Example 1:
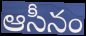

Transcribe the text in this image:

ఆసీనం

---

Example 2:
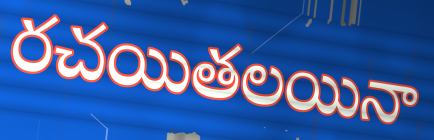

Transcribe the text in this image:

రచయితలయినా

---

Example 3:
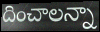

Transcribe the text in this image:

దించాలన్నా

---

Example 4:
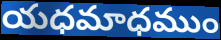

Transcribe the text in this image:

యధమాధముం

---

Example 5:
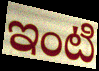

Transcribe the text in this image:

ఇంటి